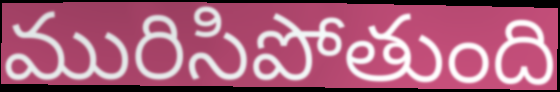
మురిసిపోతుంది